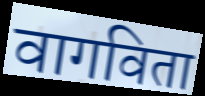
वागविता